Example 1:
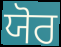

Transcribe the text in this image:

ਯੋਰ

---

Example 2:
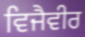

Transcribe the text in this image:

ਵਿਜੈਵੀਰ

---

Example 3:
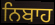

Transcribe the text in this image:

ਨਿਬਾਹ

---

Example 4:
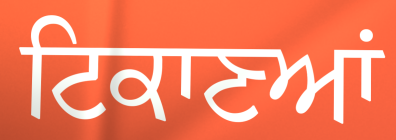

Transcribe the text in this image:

ਟਿਕਾਣਆਂ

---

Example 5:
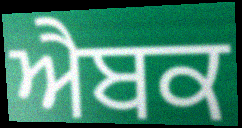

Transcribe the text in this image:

ਐਬਕ